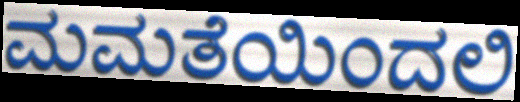
ಮಮತೆಯಿಂದಲಿ